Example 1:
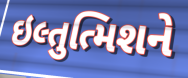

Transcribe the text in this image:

ઇલ્તુત્મિશને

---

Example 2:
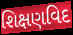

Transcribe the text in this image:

શિક્ષણવિદ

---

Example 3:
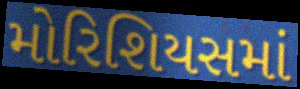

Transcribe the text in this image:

મોરિશિયસમાં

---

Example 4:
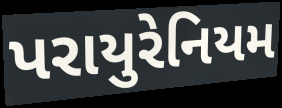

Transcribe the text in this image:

પરાયુરેનિયમ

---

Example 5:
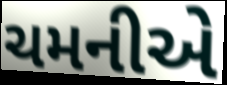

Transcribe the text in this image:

ચમનીએ